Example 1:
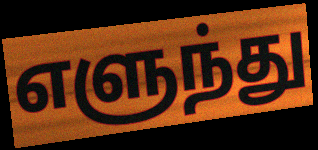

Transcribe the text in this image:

எளுந்து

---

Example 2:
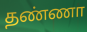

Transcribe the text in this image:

தண்ணா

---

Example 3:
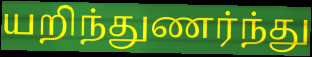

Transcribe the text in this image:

யறிந்துணர்ந்து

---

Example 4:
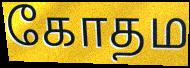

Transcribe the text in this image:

கோதம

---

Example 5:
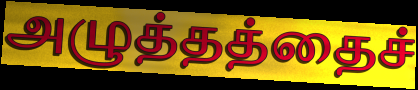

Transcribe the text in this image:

அழுத்தத்தைச்